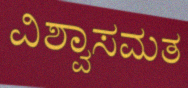
ವಿಶ್ವಾಸಮತ